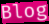
Blog